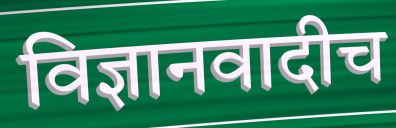
विज्ञानवादीच